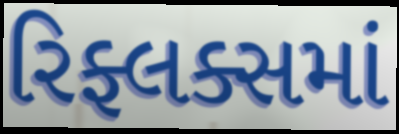
રિફ્લક્સમાં